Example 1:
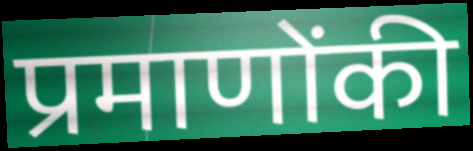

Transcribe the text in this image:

प्रमाणोंकी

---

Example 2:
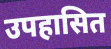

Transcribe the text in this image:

उपहासित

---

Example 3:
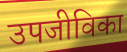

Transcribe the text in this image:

उपजीविका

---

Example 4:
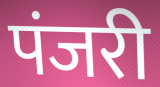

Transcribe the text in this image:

पंजरी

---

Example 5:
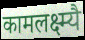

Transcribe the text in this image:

कामलक्ष्म्यै